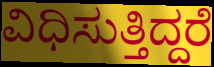
ವಿಧಿಸುತ್ತಿದ್ದರೆ